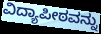
ವಿದ್ಯಾಪೀಠವನ್ನು